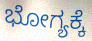
ಭೋಗ್ಯಕ್ಕೆ